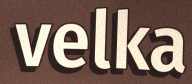
velka